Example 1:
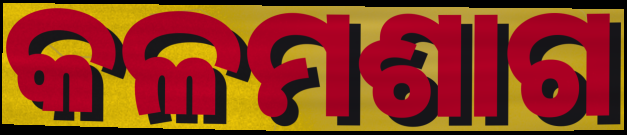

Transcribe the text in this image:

କଳମଶାଗ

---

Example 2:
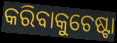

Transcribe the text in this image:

କରିବାକୁଚେଷ୍ଟା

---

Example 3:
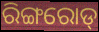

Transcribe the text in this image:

ରିଙ୍ଗରୋଡ୍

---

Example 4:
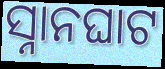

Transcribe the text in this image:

ସ୍ନାନଘାଟ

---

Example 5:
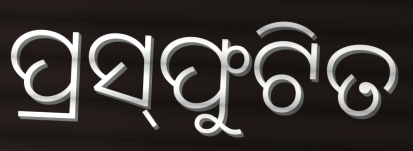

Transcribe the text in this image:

ପ୍ରସ୍‌ଫୁଟିତ